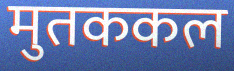
मुतककल